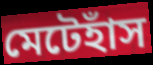
মেটেহাঁস